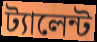
ট্যালেন্ট